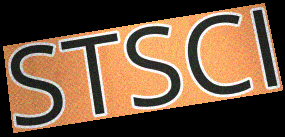
STSCI